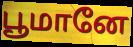
பூமானே